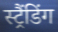
स्ट्रैंडिंग